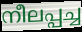
നീലപ്പച്ച